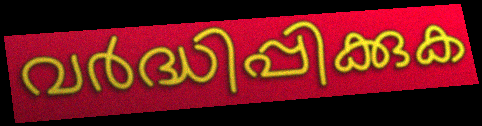
വർദ്ധിപ്പിക്കുക